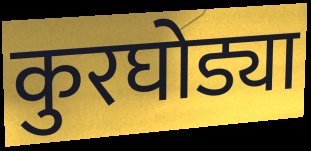
कुरघोड्या